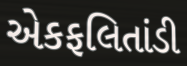
એકફલિતાંડી